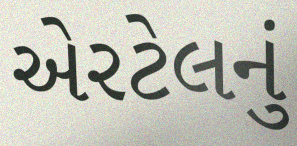
એરટેલનું